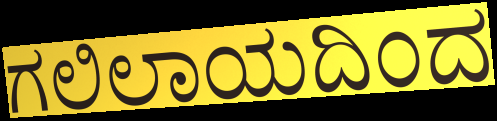
ಗಲಿಲಾಯದಿಂದ